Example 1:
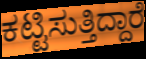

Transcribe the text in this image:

ಕಟ್ಟಿಸುತ್ತಿದ್ದಾರೆ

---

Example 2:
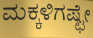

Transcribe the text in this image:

ಮಕ್ಕಳಿಗಷ್ಟೇ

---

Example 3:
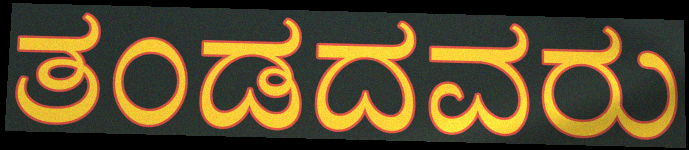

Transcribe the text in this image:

ತಂಡದವರು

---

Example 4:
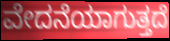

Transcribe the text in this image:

ವೇದನೆಯಾಗುತ್ತದೆ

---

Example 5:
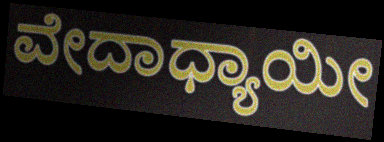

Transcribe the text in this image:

ವೇದಾಧ್ಯಾಯೀ